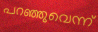
പറഞ്ഞുവെന്ന്